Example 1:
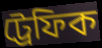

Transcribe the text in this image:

ট্ৰেফিক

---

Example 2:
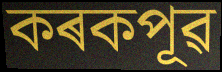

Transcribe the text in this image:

কৰকপূৱ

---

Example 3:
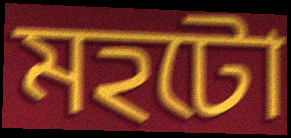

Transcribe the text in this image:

মহটো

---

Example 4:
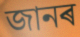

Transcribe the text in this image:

জানৰ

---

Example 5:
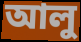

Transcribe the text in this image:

আলু